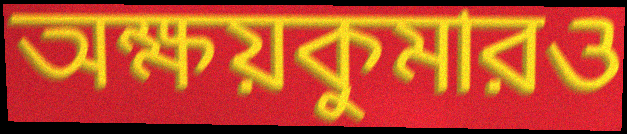
অক্ষয়কুমারও